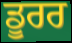
ਡੂਰਰ